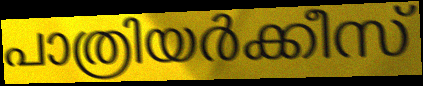
പാത്രിയർക്കീസ്